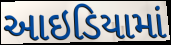
આઇડિયામાં